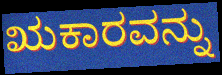
ಋಕಾರವನ್ನು